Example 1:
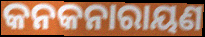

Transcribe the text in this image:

କନକନାରାୟଣ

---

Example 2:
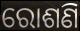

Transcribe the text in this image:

ରୋଶଣି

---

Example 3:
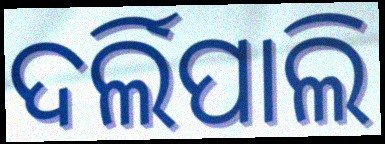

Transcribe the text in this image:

ଦର୍ଲିପାଲି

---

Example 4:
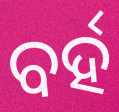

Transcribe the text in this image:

ବର୍ହ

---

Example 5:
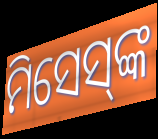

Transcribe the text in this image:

ମିସେସ୍‍ଙ୍କ